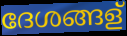
ദേശങ്ങള്